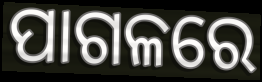
ପାଗଳରେ